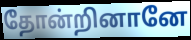
தோன்றினானே